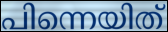
പിന്നെയിത്